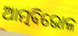
ଆତ୍ମବିଭୋଳ